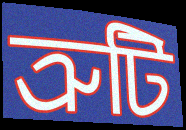
ত্রুটি